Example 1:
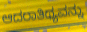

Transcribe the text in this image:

ಆದರಾತಿಥ್ಯವನ್ನು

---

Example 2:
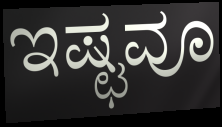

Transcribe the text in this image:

ಇಷ್ಟವೂ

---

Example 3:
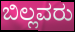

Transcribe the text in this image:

ಬಿಲ್ಲವರು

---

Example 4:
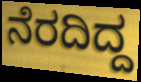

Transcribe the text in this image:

ನೆರದಿದ್ದ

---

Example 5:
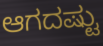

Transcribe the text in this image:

ಆಗದಷ್ಟು